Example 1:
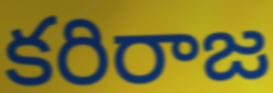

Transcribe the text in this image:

కరిరాజ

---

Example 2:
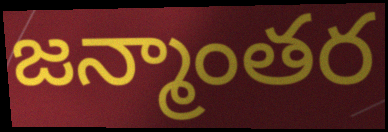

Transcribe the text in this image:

జన్మాంతర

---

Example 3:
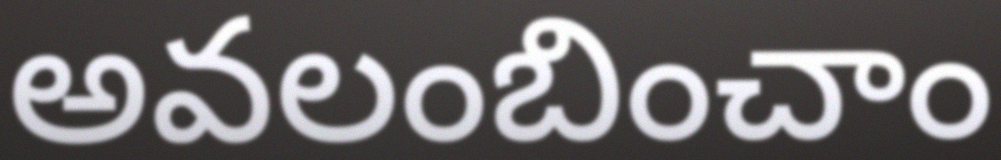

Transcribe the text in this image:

అవలంబించాం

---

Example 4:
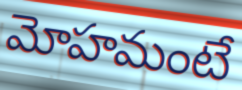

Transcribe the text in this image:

మోహమంటే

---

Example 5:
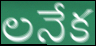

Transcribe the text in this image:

లనేక